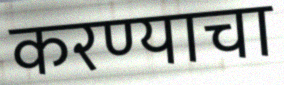
करण्याचा